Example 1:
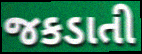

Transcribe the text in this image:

જકડાતી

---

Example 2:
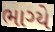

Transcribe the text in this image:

ભાગ્યે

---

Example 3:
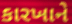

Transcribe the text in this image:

કારખાને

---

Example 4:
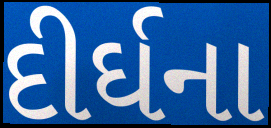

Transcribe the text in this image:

દીર્ઘના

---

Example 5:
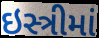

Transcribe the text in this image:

ઇસ્ત્રીમાં